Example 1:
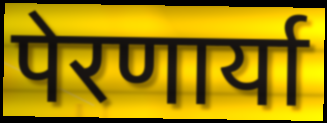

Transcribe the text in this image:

पेरणार्या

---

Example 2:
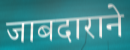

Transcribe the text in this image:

जाबदाराने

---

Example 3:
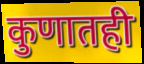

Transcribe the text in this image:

कुणातही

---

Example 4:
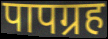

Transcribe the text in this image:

पापग्रह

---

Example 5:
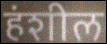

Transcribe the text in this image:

हंशील